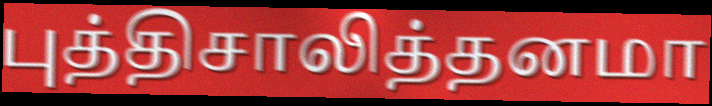
புத்திசாலித்தனமா